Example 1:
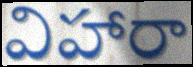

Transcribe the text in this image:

విహారా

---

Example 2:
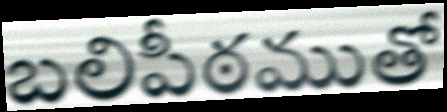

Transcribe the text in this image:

బలిపీఠముతో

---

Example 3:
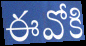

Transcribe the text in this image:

ఈవోకి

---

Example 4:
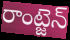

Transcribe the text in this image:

రాంట్జెన్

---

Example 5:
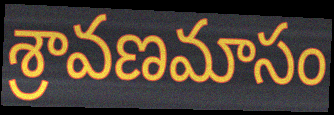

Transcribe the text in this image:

శ్రావణమాసం